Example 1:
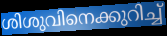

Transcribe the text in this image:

ശിശുവിനെക്കുറിച്ച്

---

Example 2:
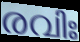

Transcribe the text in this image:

രവിഃ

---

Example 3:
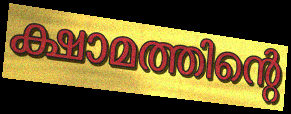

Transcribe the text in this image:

ക്ഷാമത്തിന്റെ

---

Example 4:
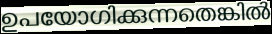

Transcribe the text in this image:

ഉപയോഗിക്കുന്നതെങ്കിൽ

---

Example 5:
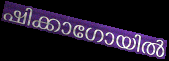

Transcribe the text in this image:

ഷിക്കാഗോയിൽ